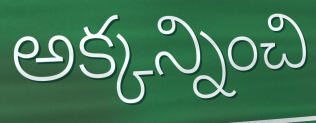
అక్కన్నించి